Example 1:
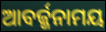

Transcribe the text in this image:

ଆବର୍ଜ୍ଜନାମୟ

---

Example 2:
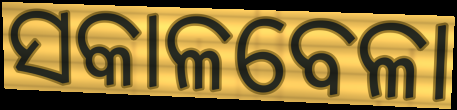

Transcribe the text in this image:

ସକାଳବେଳା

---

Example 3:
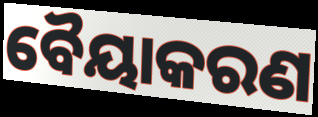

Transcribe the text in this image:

ବୈୟାକରଣ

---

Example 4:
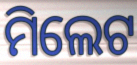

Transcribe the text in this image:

ମିଲେଟ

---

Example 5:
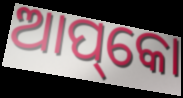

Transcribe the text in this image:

ଆପ୍‌କୋ